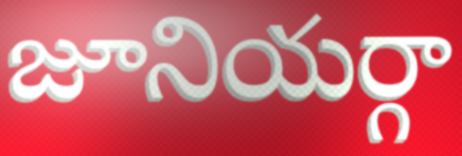
జూనియర్గా